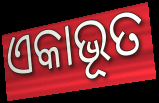
ଏକାଭୂତ